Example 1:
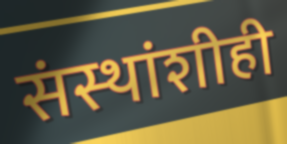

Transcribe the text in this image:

संस्थांशीही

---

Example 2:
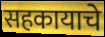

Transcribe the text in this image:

सहकायाचे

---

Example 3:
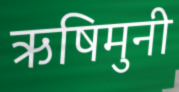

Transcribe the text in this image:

ऋषिमुनी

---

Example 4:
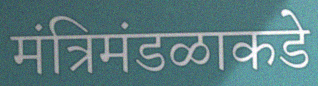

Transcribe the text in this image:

मंत्रिमंडळाकडे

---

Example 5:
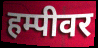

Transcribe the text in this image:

हम्पीवर